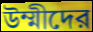
উম্মীদের